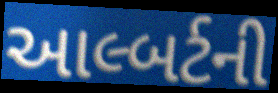
આલ્બર્ટની